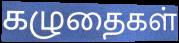
கழுதைகள்